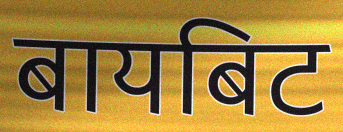
बायबिट